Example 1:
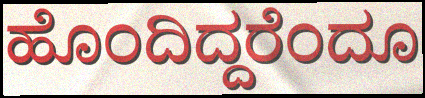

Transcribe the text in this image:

ಹೊಂದಿದ್ದರೆಂದೂ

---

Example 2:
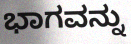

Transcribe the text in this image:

ಭಾಗವನ್ನು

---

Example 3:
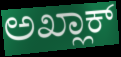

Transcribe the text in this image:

ಅಖ್ಲಾಕ್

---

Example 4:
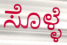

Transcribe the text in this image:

ಸೊಳ್ಳೆ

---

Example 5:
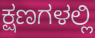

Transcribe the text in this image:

ಕ್ಷಣಗಳಲ್ಲಿ